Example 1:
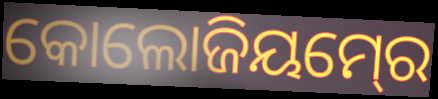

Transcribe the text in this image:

କୋଲୋଜିୟମ୍‍ରେ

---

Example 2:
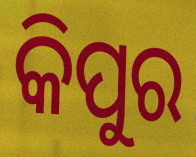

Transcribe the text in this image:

କିପୁର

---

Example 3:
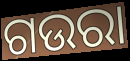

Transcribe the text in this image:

ଗଉରା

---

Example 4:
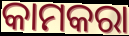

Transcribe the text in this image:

କାମକରା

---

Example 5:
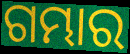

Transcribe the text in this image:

ଗମ୍ଭାର